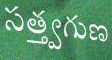
సత్త్వగుణ